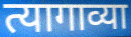
त्यागाव्या